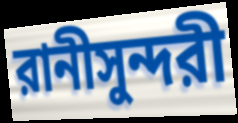
রানীসুন্দরী